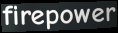
firepower